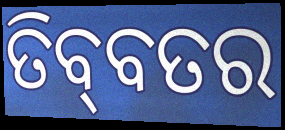
ତିବ୍‌ବତର